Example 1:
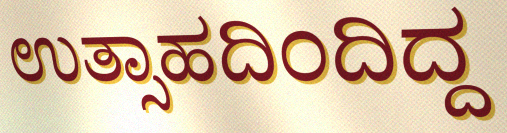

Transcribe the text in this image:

ಉತ್ಸಾಹದಿಂದಿದ್ದ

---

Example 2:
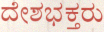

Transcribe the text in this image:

ದೇಶಭಕ್ತರು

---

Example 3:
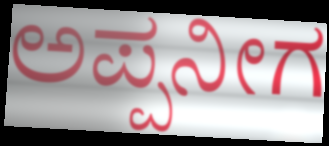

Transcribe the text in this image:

ಅಪ್ಪನೀಗ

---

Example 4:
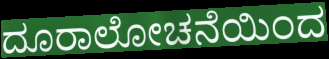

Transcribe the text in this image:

ದೂರಾಲೋಚನೆಯಿಂದ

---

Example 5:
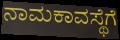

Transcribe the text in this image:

ನಾಮಕಾವಸ್ಥೆಗೆ